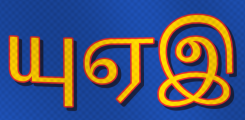
யுஏஇ